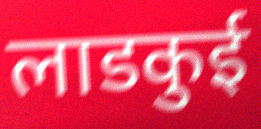
लाडकुई